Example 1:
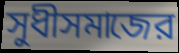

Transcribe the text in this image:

সুধীসমাজের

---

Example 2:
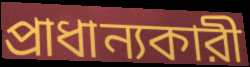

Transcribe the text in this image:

প্রাধান্যকারী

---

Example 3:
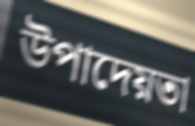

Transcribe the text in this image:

উপাদেয়তা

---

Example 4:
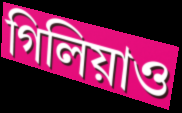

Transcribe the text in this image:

গিলিয়াও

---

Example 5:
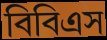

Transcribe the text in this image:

বিবিএস